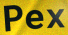
Pex